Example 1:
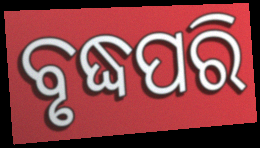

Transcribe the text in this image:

ବୃଦ୍ଧପରି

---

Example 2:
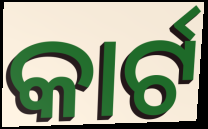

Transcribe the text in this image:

କାର୍ଟ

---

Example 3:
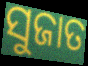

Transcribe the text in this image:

ସୁଜାତ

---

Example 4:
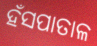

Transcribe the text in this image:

ହଁସପାତାଳ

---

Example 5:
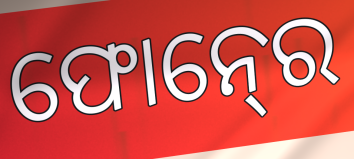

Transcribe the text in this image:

ଫୋନ୍‍ରେ